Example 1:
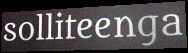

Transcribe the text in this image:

solliteenga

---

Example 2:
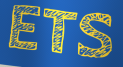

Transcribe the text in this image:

ETS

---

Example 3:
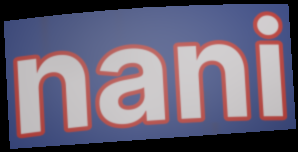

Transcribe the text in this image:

nani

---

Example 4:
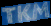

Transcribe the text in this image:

TKM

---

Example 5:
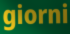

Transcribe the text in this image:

giorni